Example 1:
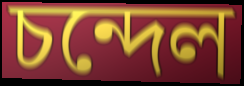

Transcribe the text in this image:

চন্দেল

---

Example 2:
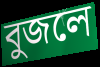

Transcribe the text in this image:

বুজলে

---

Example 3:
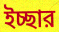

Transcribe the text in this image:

ইচ্ছার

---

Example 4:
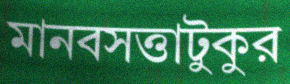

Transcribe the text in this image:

মানবসত্তাটুকুর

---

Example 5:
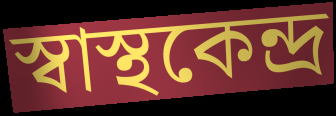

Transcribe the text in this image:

স্বাস্থকেন্দ্র